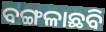
ବଙ୍ଗଳାଛବି